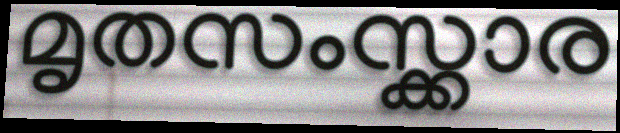
മൃതസംസ്ക്കാര